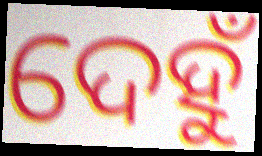
ଦେହୁଁ